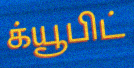
க்யூபிட்